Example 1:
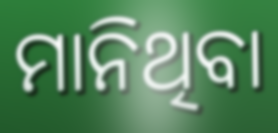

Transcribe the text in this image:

ମାନିଥିବା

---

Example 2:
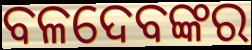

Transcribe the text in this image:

ବଳଦେବଙ୍କର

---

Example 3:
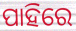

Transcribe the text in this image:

ପାହିରେ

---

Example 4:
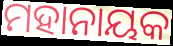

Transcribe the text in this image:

ମହାନାୟକ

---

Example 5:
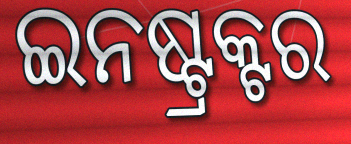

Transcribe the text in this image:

ଇନଷ୍ଟ୍ରକ୍ଟର